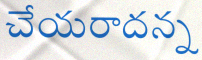
చేయరాదన్న